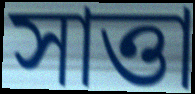
সাত্তা